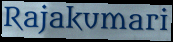
Rajakumari